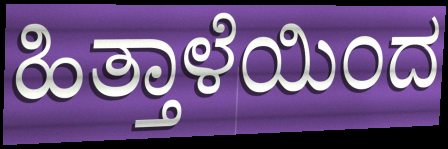
ಹಿತ್ತಾಳೆಯಿಂದ